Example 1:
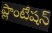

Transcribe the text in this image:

ప్లాంటేషన్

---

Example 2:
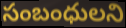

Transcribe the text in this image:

సంబంధులని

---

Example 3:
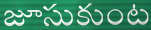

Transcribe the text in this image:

జూసుకుంట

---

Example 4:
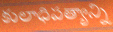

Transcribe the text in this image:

కులాధిపత్యాన్ని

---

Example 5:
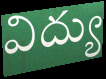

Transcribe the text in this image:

విద్యు